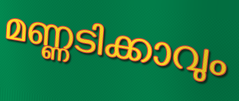
മണ്ണടിക്കാവും